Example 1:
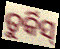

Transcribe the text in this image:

ତୁର୍କିସ୍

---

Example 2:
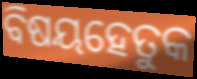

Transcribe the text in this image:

ବିଷୟହେତୁକ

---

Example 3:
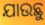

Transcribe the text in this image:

ଯାଉଛୁ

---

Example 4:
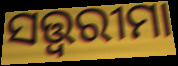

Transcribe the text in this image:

ସତ୍ତ୍ୱରୀମା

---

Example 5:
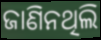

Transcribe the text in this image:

ଜାଣିନଥିଲି